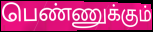
பெண்ணுக்கும்